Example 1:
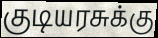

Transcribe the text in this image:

குடியரசுக்கு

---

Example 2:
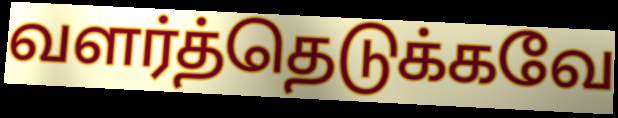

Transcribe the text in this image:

வளர்த்தெடுக்கவே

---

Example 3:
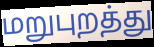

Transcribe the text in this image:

மறுபுறத்து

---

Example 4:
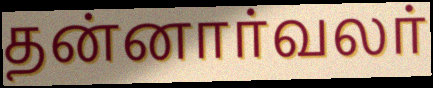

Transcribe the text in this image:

தன்னார்வலர்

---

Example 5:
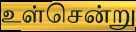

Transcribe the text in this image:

உள்சென்று